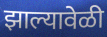
झाल्यावेळी